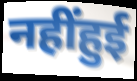
नहींहुई